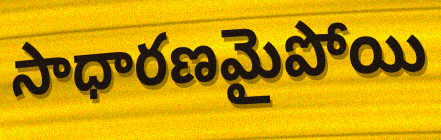
సాధారణమైపోయి